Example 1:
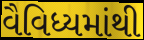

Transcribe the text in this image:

વૈવિધ્યમાંથી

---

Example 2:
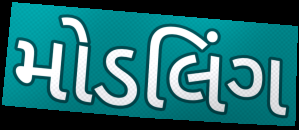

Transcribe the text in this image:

મોડલિંગ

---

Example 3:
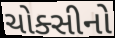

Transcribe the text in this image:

ચોક્સીનો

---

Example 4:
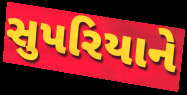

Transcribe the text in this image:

સુપરિયાને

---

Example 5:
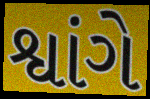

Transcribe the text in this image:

શ્વાંગે